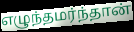
எழுந்தமர்ந்தான்